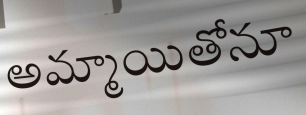
అమ్మాయితోనూ